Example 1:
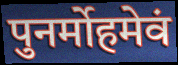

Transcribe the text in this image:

पुनर्मोहमेवं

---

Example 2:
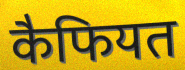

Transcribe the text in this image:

कैफियत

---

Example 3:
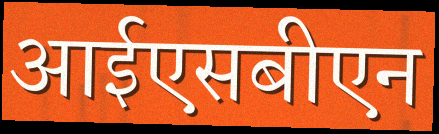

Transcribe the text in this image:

आईएसबीएन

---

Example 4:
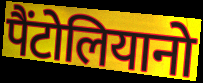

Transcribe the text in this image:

पैंटोलियानो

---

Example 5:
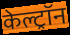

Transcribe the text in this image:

केल्ट्रॉन